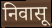
निवासू